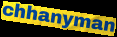
chhanyman